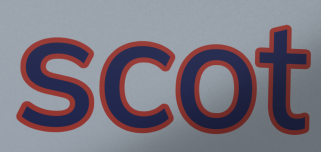
scot